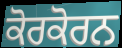
ਕੋਰਕੋਰਨ